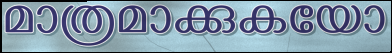
മാത്രമാക്കുകയോ